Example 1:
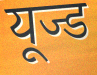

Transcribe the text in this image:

यूज्ड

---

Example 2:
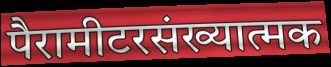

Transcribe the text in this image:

पैरामीटरसंख्यात्मक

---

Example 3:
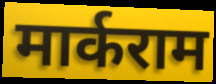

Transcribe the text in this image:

मार्कराम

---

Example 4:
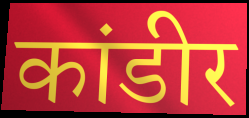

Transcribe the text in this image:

कांडीर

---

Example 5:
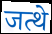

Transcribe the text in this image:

जत्थे